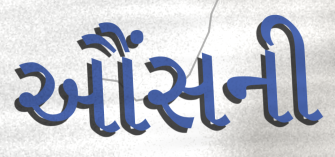
ઔંસની